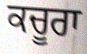
ਕਚੂਰਾ